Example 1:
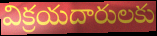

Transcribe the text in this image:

విక్రయదారులకు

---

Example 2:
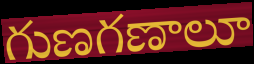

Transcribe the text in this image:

గుణగణాలూ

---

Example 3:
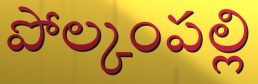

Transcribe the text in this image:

పోల్కంపల్లి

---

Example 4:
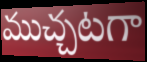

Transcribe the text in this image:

ముచ్చటగా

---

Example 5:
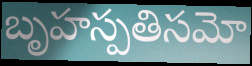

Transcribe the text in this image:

బృహస్పతిసమో